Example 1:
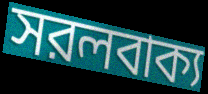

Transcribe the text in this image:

সরলবাক্য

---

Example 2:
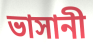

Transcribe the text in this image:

ভাসানী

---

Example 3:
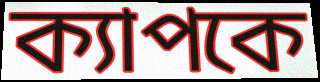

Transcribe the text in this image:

ক্যাপকে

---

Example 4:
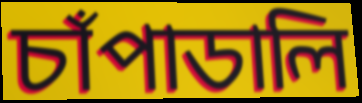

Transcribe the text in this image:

চাঁপাডালি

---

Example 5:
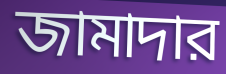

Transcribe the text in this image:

জামাদার